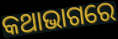
କଥାଭାଗରେ